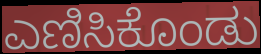
ಎಣಿಸಿಕೊಂಡು